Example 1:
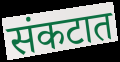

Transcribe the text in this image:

संकटात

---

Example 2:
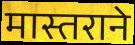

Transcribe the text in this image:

मास्तराने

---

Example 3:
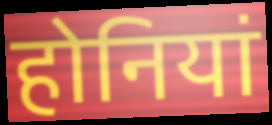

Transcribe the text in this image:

होनियां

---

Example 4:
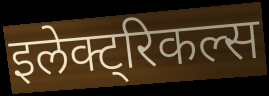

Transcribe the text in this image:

इलेक्ट्रिकल्स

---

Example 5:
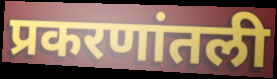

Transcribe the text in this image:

प्रकरणांतली